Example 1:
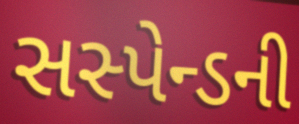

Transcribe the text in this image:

સસ્પેન્ડની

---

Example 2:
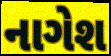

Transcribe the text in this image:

નાગેશ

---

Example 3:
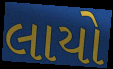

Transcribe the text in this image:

લાયો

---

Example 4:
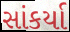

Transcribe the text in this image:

સાંકર્યા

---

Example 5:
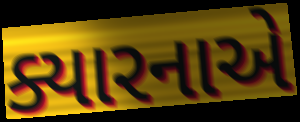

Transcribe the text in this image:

ક્યારનાએ